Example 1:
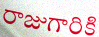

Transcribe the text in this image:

రాజుగారికి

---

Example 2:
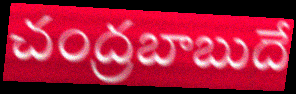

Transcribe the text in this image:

చంద్రబాబుదే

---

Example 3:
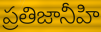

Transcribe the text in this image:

ప్రతిజానీహి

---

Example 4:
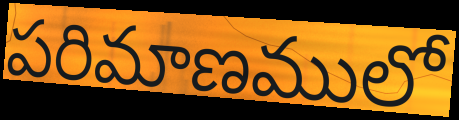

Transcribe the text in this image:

పరిమాణములో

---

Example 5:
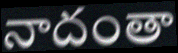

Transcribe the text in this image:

నాదంతా